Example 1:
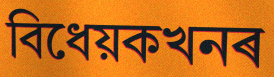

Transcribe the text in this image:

বিধেয়কখনৰ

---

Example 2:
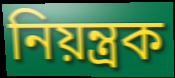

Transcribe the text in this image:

নিয়ন্ত্ৰক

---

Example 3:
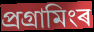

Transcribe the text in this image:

প্ৰগ্ৰামিংৰ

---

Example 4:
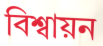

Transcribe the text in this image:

বিশ্বায়ন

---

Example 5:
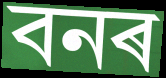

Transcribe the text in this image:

বনৰ